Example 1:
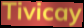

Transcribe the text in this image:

Tivicay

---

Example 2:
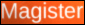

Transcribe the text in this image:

Magister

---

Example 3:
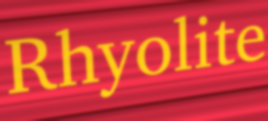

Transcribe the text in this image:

Rhyolite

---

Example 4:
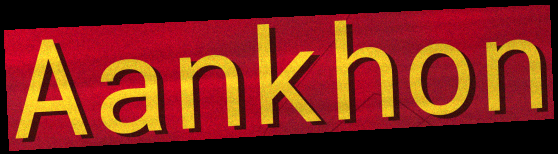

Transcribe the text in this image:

Aankhon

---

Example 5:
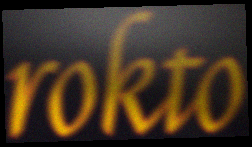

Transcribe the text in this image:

rokto